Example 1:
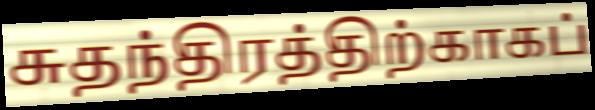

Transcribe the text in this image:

சுதந்திரத்திற்காகப்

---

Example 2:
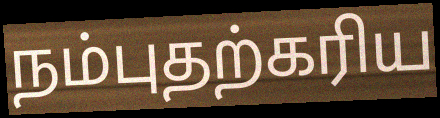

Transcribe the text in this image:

நம்புதற்கரிய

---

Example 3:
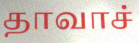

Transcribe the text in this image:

தாவாச்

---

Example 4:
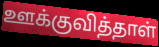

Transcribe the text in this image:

ஊக்குவித்தாள்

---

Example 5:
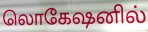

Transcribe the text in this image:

லொகேஷனில்